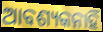
ଆବଶ୍ୟକନାହିଁ